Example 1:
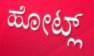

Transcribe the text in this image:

ಹೋಟ್ಲ್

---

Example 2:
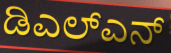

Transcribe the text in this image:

ಡಿಎಲ್ಎನ್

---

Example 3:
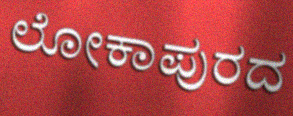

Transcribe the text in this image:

ಲೋಕಾಪುರದ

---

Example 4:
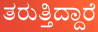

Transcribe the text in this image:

ತರುತ್ತಿದ್ದಾರೆ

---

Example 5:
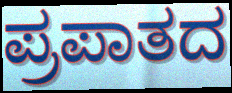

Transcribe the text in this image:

ಪ್ರಪಾತದ